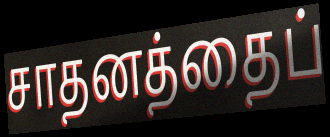
சாதனத்தைப்